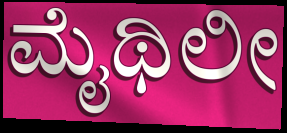
ಮೈಥಿಲೀ